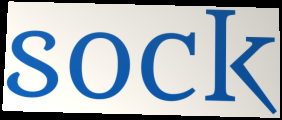
sock